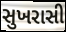
સુખરાસી